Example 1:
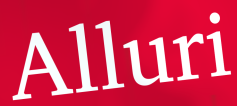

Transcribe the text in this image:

Alluri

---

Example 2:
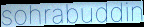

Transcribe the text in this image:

sohrabuddin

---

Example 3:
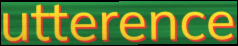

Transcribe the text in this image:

utterence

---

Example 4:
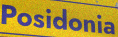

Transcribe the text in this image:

Posidonia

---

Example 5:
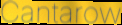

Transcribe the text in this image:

Cantarow